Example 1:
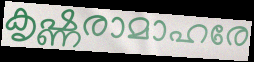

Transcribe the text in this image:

കൃഷ്ണരാമാഹരേ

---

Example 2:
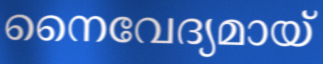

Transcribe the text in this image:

നൈവേദ്യമായ്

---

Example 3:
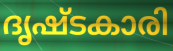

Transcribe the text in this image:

ദൃഷ്ടകാരി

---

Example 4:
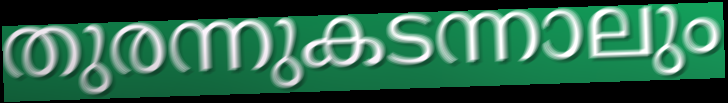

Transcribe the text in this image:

തുരന്നുകടന്നാലും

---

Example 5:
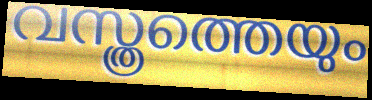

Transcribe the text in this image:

വസ്ത്രത്തെയും